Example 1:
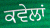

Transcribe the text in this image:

ਕਵੇਲਾਂ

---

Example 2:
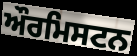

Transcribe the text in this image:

ਔਰਮਿਸਟਨ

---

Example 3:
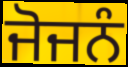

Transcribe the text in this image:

ਜੋਜਨੰ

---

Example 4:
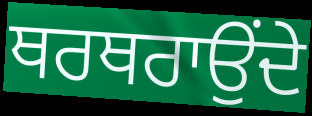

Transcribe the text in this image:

ਥਰਥਰਾਉਂਦੇ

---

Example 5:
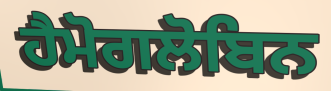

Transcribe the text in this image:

ਹੈਮੋਗਲੋਬਿਨ